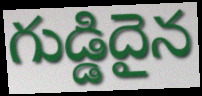
గుడ్డిదైన